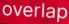
overlap